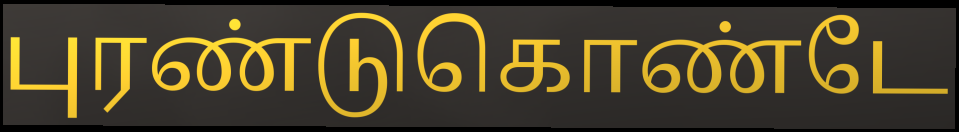
புரண்டுகொண்டே